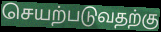
செயற்படுவதற்கு